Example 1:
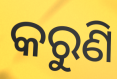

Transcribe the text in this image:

କରୁଣି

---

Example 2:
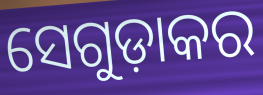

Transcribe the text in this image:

ସେଗୁଡ଼ାକର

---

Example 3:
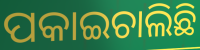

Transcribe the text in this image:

ପକାଇଚାଲିଛି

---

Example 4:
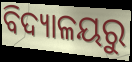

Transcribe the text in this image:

ବିଦ୍ୟାଳୟରୁ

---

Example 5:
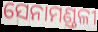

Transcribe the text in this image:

ସେନାମଣ୍ଡଳୀ